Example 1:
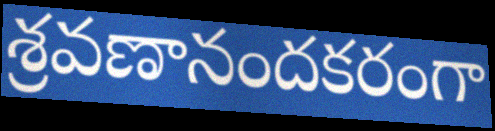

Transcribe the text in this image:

శ్రవణానందకరంగా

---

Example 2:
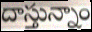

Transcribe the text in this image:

దాస్తున్నాం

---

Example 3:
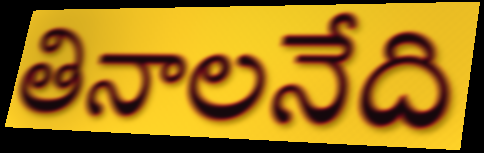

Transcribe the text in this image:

తినాలనేది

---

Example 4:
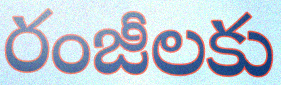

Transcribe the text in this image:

రంజీలకు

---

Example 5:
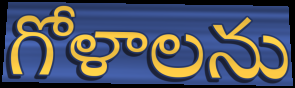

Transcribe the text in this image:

గోళాలను